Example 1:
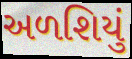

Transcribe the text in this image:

અળશિયું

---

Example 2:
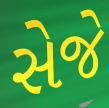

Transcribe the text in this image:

સેજે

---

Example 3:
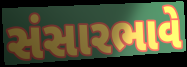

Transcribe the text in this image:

સંસારભાવે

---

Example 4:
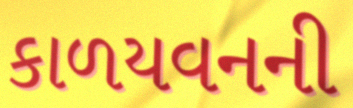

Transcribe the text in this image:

કાળયવનની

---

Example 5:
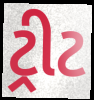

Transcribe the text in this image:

ટ્રીટ